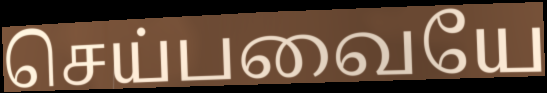
செய்பவையே